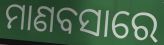
ମାଣବସାରେ